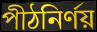
পীঠনির্ণয়